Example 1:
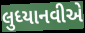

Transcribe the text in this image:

લુધ્યાનવીએ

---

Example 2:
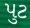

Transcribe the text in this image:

પુટ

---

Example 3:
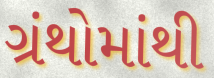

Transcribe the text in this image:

ગ્રંથોમાંથી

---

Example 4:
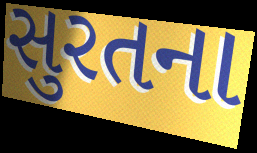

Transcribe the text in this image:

સુરતના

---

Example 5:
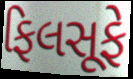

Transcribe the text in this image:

ફિલસૂફે